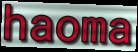
haoma